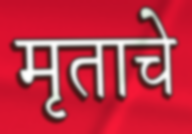
मृताचे